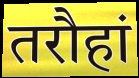
तरौहां